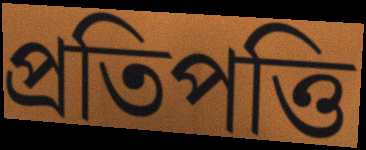
প্রতিপত্তি